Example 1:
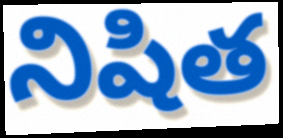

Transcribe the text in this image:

నిషిత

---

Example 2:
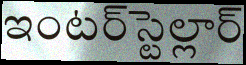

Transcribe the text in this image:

ఇంటర్‌స్టెల్లార్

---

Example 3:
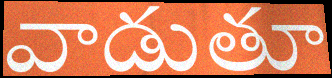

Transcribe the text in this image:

వాడుతూ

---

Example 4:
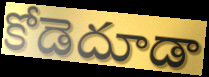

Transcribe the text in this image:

కోడెదూడా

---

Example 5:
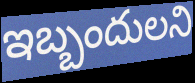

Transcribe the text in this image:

ఇబ్బందులని